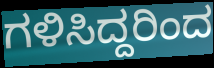
ಗಳಿಸಿದ್ದರಿಂದ